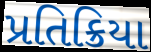
પ્રતિક્રિયા